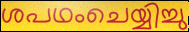
ശപഥംചെയ്യിച്ചു